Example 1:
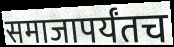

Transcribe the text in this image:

समाजापर्यंतच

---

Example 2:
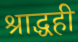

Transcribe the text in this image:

श्राद्धही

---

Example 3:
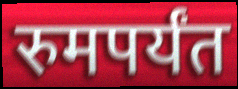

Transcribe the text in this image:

रुमपर्यंत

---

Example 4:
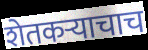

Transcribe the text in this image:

शेतकऱ्याचाच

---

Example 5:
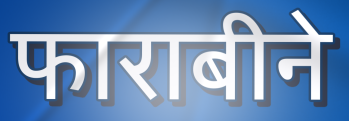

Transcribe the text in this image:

फाराबीने